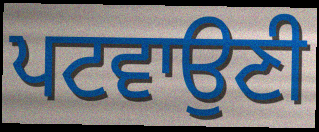
ਪਟਵਾਉਣੀ